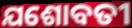
ଯଶୋବତୀ